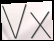
Vx